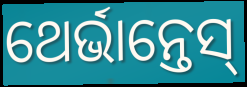
ଥେର୍ଭାନ୍ତେସ୍